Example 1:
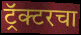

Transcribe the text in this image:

ट्रॅक्टरचा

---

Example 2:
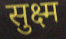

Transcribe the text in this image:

सुक्ष्म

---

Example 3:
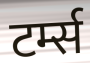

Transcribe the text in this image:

टर्म्स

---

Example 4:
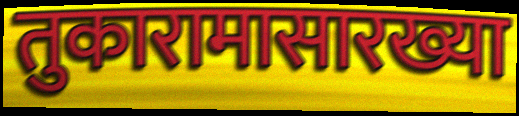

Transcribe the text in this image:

तुकारामासारख्या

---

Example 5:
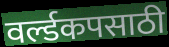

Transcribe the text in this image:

वर्ल्डकपसाठी